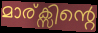
മാര്ക്സിന്റെ